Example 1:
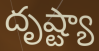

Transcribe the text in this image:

దృష్ట్యా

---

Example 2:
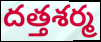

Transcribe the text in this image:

దత్తశర్మ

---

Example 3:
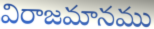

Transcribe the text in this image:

విరాజమానము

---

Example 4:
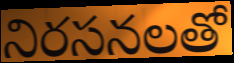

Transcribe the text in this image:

నిరసనలతో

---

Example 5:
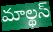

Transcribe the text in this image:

మాల్థస్